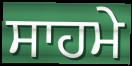
ਸਾਹਮੇ